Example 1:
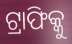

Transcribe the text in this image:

ଟ୍ରାଫିକ୍କୁ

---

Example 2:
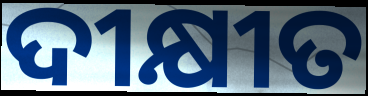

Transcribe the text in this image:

ଦୀକ୍ଷୀତ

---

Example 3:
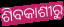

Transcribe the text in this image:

ଶିବକାଶୀରୁ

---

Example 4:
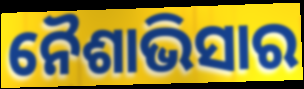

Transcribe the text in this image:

ନୈଶାଭିସାର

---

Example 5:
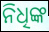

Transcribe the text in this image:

ନିଧିଙ୍କ